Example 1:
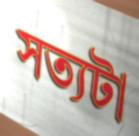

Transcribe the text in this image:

সত্যটা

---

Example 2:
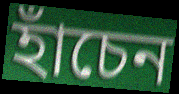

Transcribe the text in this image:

হাঁচেন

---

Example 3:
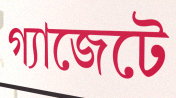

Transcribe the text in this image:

গ্যাজেটে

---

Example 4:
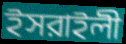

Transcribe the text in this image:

ইসরাইলী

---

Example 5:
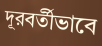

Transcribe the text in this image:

দূরবর্তীভাবে